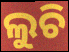
ଲୁଚି